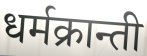
धर्मक्रान्ती